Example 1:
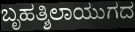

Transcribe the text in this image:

ಬೃಹತ್ಶಿಲಾಯುಗದ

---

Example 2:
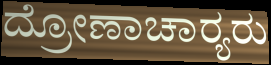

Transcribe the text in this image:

ದ್ರೋಣಾಚಾರ‍್ಯರು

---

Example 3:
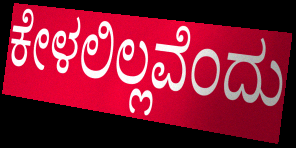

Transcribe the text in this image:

ಕೇಳಲಿಲ್ಲವೆಂದು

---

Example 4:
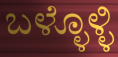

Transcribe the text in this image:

ಬಳ್ಳೊಳ್ಳಿ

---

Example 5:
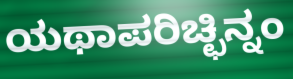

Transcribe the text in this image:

ಯಥಾಪರಿಚ್ಛಿನ್ನಂ